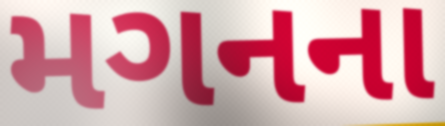
મગનના